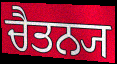
ਚੈਤਨ੍ਯ